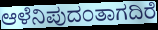
ಆಳೆನಿಪುದಂತಾಗದಿರೆ